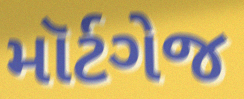
મૉર્ટગેજ